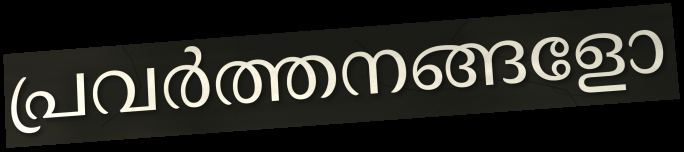
പ്രവർത്തനങ്ങളോ